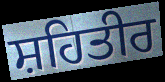
ਸ਼ਹਿਤੀਰ